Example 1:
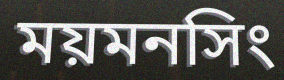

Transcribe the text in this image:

ময়মনসিং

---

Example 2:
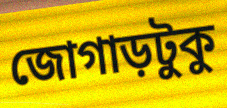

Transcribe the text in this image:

জোগাড়টুকু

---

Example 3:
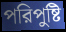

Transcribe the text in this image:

পরিপুষ্টি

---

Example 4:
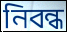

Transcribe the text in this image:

নিবন্ধ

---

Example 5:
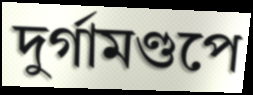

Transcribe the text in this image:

দুর্গামণ্ডপে